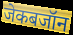
जेकबजॉन